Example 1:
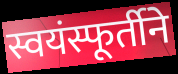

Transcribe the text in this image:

स्वयंस्फूर्तीने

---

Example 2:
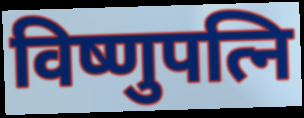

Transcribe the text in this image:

विष्णुपत्नि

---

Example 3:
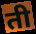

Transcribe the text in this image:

ती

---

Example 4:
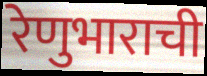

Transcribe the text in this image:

रेणुभाराची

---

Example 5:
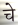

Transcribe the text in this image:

चे